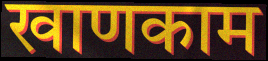
खाणकाम